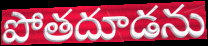
పోతదూడను